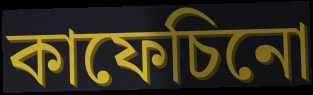
কাফেচিনো